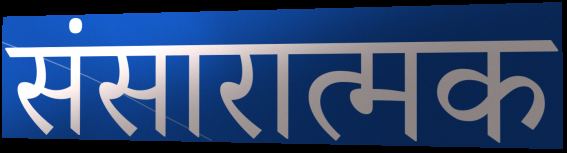
संसारात्मक